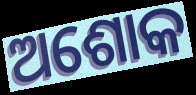
ଅଶୋକ